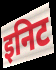
इनिट